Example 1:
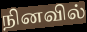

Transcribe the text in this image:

நினவில்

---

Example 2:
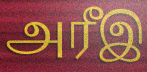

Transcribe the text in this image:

அரீஇ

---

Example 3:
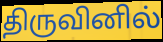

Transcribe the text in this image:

திருவினில்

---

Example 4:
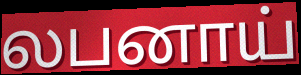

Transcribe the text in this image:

லபனாய்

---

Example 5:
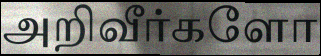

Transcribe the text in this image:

அறிவீர்களோ